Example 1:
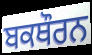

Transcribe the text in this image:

ਬਕਥੌਰਨ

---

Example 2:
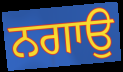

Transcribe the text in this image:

ਨਗਾਉ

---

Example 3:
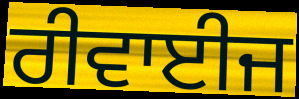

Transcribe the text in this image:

ਰੀਵਾਈਜ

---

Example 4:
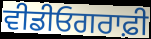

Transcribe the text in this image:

ਵੀਡੀਓਗਰਾਫ਼ੀ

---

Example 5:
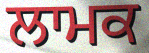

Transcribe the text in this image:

ਲਾਮਕ